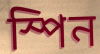
স্পিন